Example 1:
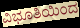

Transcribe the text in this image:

ವಿಭೂತಿಯಿಂದ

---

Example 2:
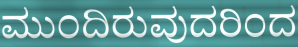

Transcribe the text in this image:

ಮುಂದಿರುವುದರಿಂದ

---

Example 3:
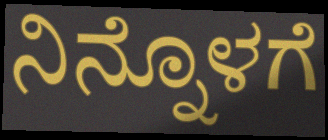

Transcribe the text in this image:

ನಿನ್ನೊಳಗೆ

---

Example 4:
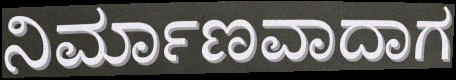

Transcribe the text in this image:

ನಿರ್ಮಾಣವಾದಾಗ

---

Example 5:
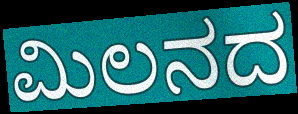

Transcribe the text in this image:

ಮಿಲನದ